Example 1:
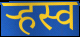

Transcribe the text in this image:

र्‍हस्व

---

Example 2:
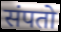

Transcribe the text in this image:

संपतो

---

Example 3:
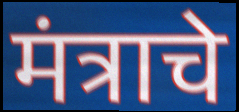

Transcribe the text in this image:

मंत्राचे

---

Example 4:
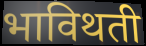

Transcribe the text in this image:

भाविथती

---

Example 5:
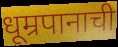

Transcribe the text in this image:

धूम्रपानाची